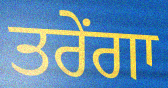
ਤਰੇਂਗਾ